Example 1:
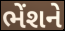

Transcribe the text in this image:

ભેંશને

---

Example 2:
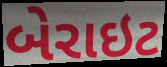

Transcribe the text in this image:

બેરાઇટ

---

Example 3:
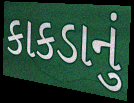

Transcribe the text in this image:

કાકડાનું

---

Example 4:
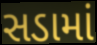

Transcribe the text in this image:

સડામાં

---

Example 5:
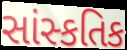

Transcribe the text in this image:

સાંસ્કતિક